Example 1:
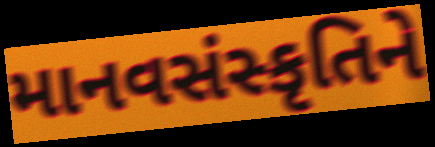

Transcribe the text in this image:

માનવસંસ્કૃતિને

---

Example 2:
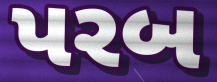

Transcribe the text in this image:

પરબ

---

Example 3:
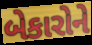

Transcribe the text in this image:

બેકારોને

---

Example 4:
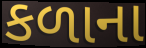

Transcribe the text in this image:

કળાના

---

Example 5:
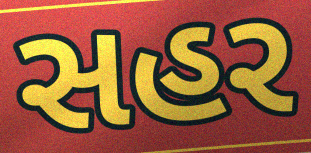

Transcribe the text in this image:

સહર